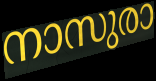
നാസുരാ